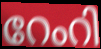
റേംറി